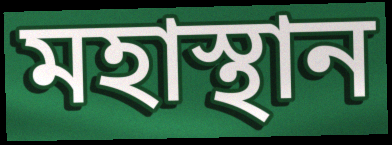
মহাস্থান